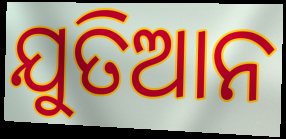
ଯୁତିଆନ